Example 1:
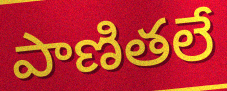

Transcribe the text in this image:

పాణితలే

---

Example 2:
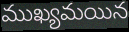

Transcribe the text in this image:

ముఖ్యమయిన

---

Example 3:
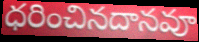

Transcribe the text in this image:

ధరించినదానవూ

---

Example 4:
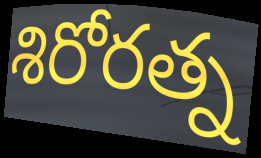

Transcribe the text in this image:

శిరోరత్న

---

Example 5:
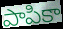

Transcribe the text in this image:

పాపికా